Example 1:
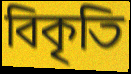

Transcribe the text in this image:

বিকৃতি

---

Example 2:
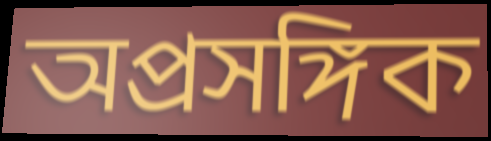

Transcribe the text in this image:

অপ্রসঙ্গিক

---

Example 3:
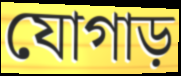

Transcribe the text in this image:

যোগাড়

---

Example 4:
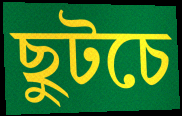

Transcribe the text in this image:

ছুটচে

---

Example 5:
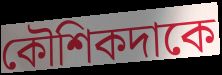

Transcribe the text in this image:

কৌশিকদাকে